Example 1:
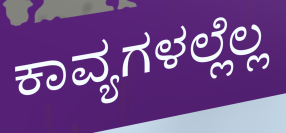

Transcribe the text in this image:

ಕಾವ್ಯಗಳಲ್ಲೆಲ್ಲ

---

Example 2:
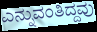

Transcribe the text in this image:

ಎನ್ನುವಂತಿದ್ದವು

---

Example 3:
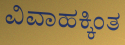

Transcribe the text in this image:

ವಿವಾಹಕ್ಕಿಂತ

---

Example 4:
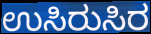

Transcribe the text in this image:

ಉಸಿರುಸಿರ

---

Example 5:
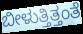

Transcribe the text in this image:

ಬೀಳುತ್ತಿತ್ತಂತೆ